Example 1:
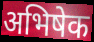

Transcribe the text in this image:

अभिषेक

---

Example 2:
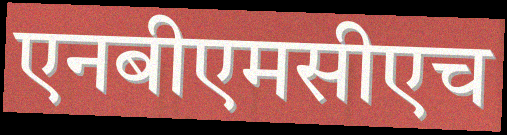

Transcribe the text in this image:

एनबीएमसीएच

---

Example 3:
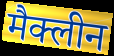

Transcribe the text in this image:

मैक्लीन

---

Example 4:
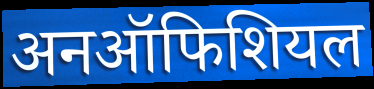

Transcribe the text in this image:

अनऑफिशियल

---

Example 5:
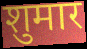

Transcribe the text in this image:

शुमार